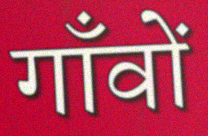
गाँवों